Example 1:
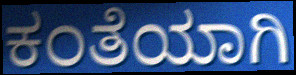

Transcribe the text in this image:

ಕಂತೆಯಾಗಿ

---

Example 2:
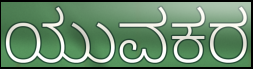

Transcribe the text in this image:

ಯುವಕರ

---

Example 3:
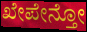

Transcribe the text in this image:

ಖೇಪೇನ್ತೋ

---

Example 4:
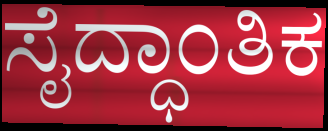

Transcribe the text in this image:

ಸೈದ್ಧಾಂತಿಕ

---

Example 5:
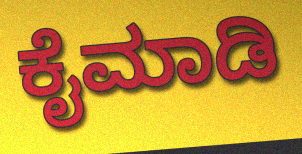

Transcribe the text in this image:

ಕೈಮಾಡಿ